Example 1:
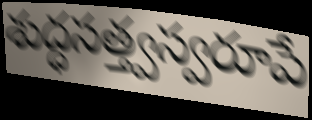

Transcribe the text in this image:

శుద్ధసత్త్వస్వరూపే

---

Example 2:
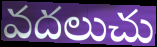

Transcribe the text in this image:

వదలుచు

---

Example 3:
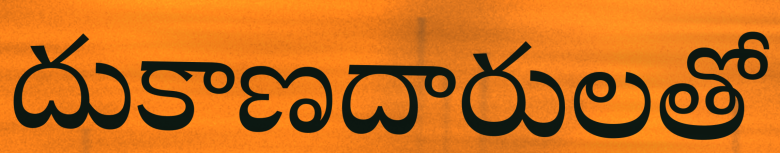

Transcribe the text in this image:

దుకాణదారులతో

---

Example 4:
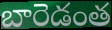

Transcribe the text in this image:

బారెడంత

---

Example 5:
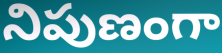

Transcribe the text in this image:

నిపుణంగా